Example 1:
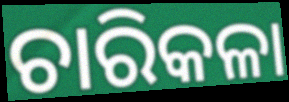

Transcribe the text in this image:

ଚାରିକଳା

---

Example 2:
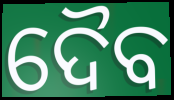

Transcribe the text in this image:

ଦୈବ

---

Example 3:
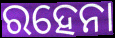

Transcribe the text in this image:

ରହେନା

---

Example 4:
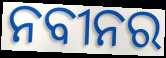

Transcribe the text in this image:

ନବୀନର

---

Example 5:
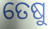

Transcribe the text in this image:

ତେଷୁ